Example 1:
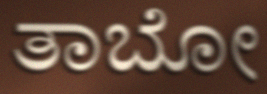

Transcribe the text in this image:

ತಾಬೋ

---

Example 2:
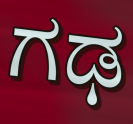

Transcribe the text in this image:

ಗಢ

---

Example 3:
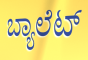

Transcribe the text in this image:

ಬ್ಯಾಲೆಟ್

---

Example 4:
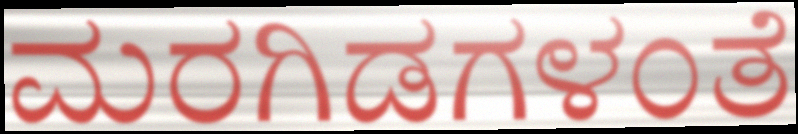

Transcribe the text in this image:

ಮರಗಿಡಗಳಂತೆ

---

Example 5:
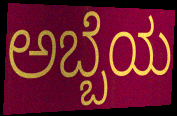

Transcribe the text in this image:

ಅಬ್ಬೆಯ